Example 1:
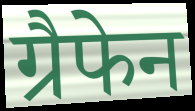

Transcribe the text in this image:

ग्रैफेन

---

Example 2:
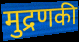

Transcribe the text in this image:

मुद्रणकी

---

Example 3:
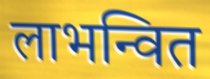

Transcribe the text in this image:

लाभन्वित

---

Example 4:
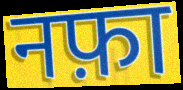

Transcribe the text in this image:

नफ़ा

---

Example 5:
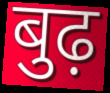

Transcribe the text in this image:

बुढ़